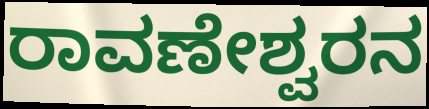
ರಾವಣೇಶ್ವರನ